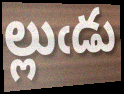
ల్లుఁడు